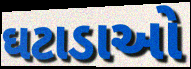
ઘટાડાઓ